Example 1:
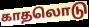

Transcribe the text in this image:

காதலொடு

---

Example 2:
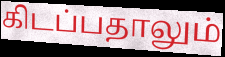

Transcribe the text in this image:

கிடப்பதாலும்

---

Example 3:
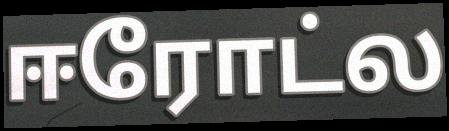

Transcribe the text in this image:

ஈரோட்ல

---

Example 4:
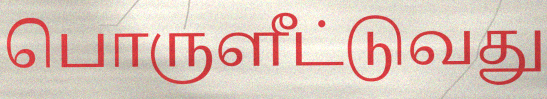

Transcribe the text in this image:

பொருளீட்டுவது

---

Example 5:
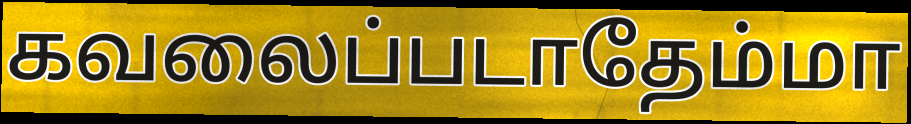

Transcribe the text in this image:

கவலைப்படாதேம்மா